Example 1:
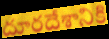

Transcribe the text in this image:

దూరదేశానికి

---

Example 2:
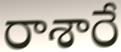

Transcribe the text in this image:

రాశారే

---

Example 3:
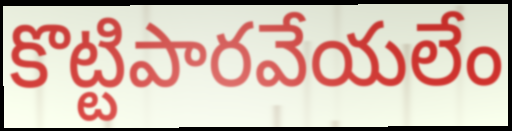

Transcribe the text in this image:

కొట్టిపారవేయలేం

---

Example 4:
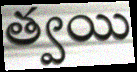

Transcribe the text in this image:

త్వయి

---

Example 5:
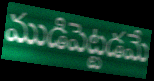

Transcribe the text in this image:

ముడిపెట్టడమే